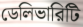
ডেলিভারিটি